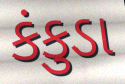
કંકુડા